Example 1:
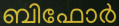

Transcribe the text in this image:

ബിഫോർ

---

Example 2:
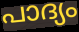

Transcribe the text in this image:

പാദ്യം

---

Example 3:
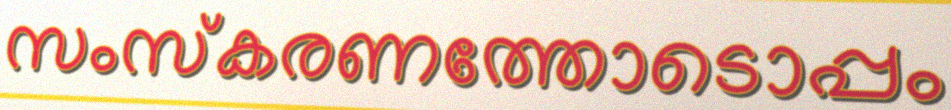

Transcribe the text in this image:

സംസ്കരണത്തോടൊപ്പം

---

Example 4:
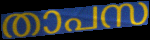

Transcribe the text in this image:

താപസ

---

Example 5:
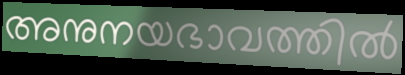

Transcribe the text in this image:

അനുനയഭാവത്തിൽ